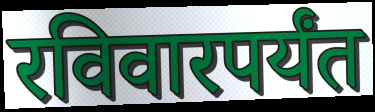
रविवारपर्यंत